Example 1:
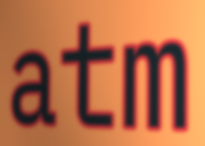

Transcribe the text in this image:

atm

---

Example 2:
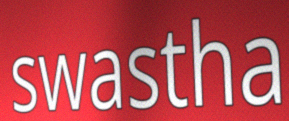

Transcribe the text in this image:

swastha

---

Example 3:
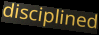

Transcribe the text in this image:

disciplined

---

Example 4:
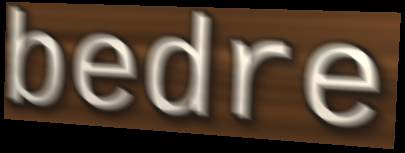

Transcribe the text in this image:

bedre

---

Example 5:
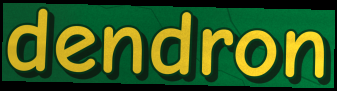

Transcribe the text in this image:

dendron